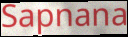
Sapnana